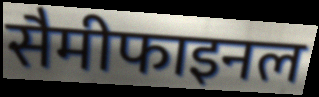
सैमीफाइनल